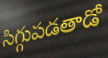
సిగ్గుపడతాడో